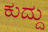
ಕುದ್ದು